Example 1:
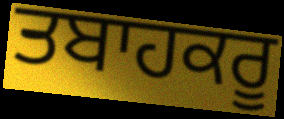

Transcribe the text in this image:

ਤਬਾਹਕਰੂ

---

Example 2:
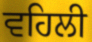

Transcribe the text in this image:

ਵਹਿਲੀ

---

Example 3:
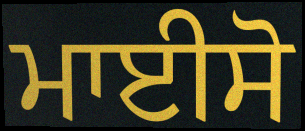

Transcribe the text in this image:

ਮਾਈਸੋ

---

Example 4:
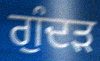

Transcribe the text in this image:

ਗੁੰਦੜ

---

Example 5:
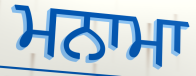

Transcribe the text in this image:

ਮਨਾਮਾ